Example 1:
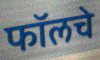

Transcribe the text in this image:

फॉलचे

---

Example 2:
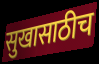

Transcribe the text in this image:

सुखासाठीच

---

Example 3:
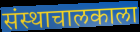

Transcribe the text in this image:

संस्थाचालकाला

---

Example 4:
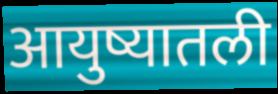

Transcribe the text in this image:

आयुष्यातली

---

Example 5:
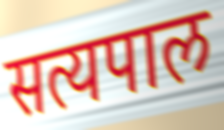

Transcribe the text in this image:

सत्यपाल